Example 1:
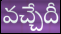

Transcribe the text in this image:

వచ్చేదీ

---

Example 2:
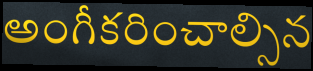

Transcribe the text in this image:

అంగీకరించాల్సిన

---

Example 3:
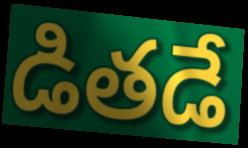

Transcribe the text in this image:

డితడే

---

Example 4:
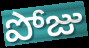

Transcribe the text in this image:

పోజు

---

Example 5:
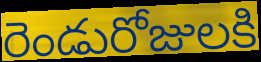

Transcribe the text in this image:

రెండురోజులకి